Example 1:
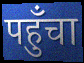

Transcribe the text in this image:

पहुँचा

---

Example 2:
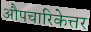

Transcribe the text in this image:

औपचारिकेत्तर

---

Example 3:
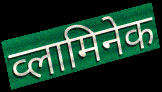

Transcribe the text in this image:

व्लामिनेक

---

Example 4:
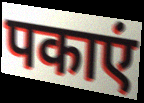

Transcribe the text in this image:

पकाएं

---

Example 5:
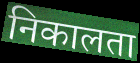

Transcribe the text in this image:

निकालता